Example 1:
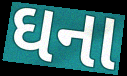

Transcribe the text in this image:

ઘના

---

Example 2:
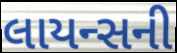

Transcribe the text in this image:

લાયન્સની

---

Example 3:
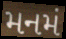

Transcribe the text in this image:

મનમં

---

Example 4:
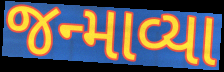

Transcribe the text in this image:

જન્માવ્યા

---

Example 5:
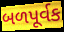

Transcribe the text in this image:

બળપૂર્વક